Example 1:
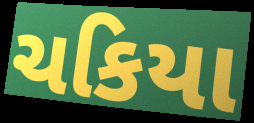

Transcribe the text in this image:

ચકિયા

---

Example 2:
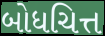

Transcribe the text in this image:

બોધચિત્ત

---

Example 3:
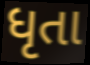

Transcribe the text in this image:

ધૃતા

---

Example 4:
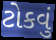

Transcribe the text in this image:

ટોકવું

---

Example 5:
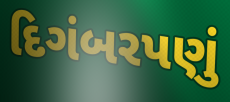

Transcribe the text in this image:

દિગંબરપણું